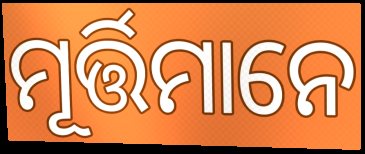
ମୂର୍ତ୍ତିମାନେ